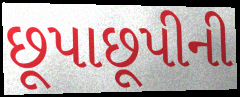
છૂપાછૂપીની